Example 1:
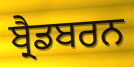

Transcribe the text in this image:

ਬ੍ਰੈਡਬਰਨ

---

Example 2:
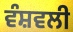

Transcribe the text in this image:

ਵੰਸ਼ਵਲੀ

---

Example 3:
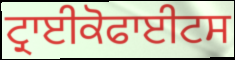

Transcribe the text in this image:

ਟ੍ਰਾਈਕੋਫਾਈਟਸ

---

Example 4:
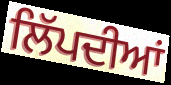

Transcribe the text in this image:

ਲਿੱਪਦੀਆਂ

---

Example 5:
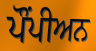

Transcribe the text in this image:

ਪੌਂਪੀਅਨ